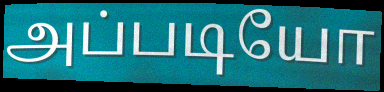
அப்படியோ